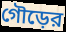
গৌড়ের